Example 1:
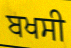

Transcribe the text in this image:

ਬਖਸੀ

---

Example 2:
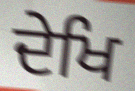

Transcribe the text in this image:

ਦੇਖਿ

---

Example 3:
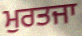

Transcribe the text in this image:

ਮੁਰਤਜਾ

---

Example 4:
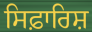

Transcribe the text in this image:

ਸਿਫ਼ਾਰਿਸ਼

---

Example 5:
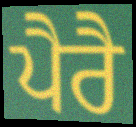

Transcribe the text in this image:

ਪੈਰੈ